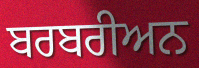
ਬਰਬਰੀਅਨ